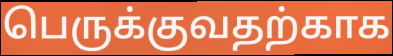
பெருக்குவதற்காக